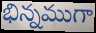
భిన్నముగా